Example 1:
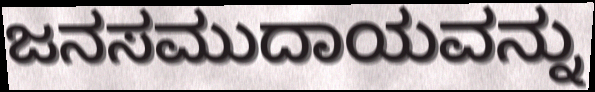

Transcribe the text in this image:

ಜನಸಮುದಾಯವನ್ನು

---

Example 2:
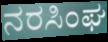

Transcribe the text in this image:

ನರಸಿಂಘ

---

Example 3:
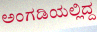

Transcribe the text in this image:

ಅಂಗಡಿಯಲ್ಲಿದ್ದ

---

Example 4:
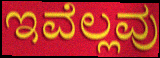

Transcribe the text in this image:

ಇವೆಲ್ಲವು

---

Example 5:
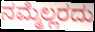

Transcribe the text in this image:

ನಮ್ಮೆಲ್ಲರದು